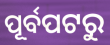
ପୂର୍ବପଟରୁ